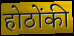
होठोंकी